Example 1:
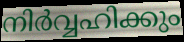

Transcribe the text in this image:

നിർവ്വഹിക്കും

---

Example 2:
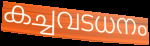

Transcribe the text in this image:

കച്ചവടധനം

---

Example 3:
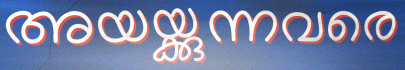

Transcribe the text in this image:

അയയ്ക്കുന്നവരെ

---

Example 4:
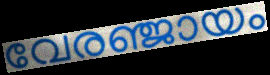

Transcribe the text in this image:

വേരഞ്ജായം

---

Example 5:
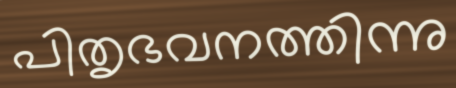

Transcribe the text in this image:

പിതൃഭവനത്തിന്നു